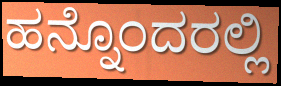
ಹನ್ನೊಂದರಲ್ಲಿ